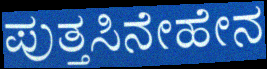
ಪುತ್ತಸಿನೇಹೇನ